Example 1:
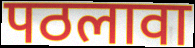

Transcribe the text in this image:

पठलावा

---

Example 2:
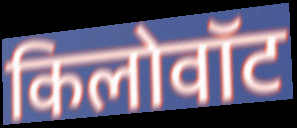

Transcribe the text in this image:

किलोवॉट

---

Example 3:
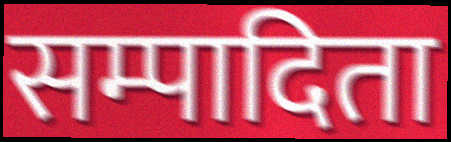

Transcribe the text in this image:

सम्पादिता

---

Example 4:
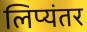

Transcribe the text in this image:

लिप्यंतर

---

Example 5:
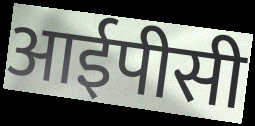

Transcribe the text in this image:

आईपीसी